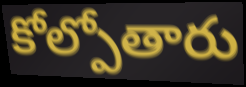
కోల్పోతారు